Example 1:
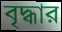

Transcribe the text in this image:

বৃদ্ধার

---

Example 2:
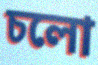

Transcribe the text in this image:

চলো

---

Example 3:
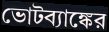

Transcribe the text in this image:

ভোটব্যাঙ্কের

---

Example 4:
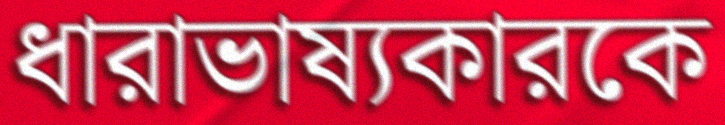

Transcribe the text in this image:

ধারাভাষ্যকারকে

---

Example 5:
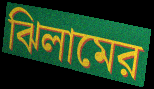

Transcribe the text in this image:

ঝিলামের